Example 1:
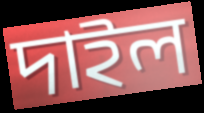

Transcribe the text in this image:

দাইল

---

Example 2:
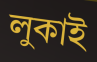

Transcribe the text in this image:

লুকাই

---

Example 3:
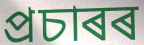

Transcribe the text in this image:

প্ৰচাৰৰ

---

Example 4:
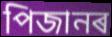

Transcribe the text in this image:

পিজানৰ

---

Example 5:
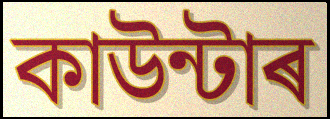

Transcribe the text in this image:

কাউন্টাৰ